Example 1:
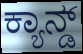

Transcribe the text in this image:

ಕ್ಯಾನ್ಡ್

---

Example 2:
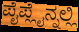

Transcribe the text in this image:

ಪೈಪ್ಲೈನ್ನಲ್ಲಿ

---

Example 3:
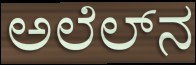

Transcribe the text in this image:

ಅಲೆಲ್‌ನ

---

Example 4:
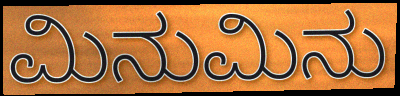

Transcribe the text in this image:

ಮಿನುಮಿನು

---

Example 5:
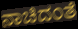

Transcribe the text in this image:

ನಾಚಿದಂತೆ